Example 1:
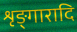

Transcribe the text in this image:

शृङ्गारादि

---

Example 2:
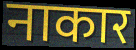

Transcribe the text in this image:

नाकार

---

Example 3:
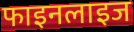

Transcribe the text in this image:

फाइनलाइज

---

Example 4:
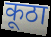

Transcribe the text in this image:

कूठा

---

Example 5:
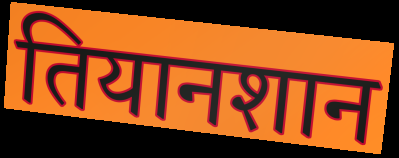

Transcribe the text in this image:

तियानशान